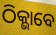
ଠିକ୍ଭାବେ